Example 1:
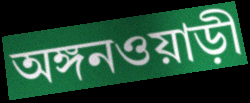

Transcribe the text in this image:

অঙ্গনওয়াড়ী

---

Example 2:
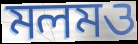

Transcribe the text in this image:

মলমও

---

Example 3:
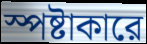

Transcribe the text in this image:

স্পষ্টাকারে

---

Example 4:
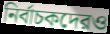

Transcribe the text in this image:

নির্বাচকদেরও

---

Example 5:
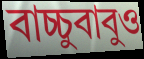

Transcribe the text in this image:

বাচ্চুবাবুও